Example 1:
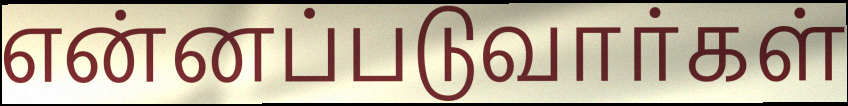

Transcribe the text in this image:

என்னப்படுவார்கள்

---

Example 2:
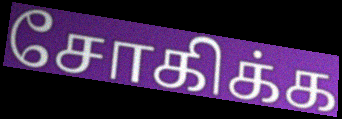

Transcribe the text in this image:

சோகிக்க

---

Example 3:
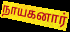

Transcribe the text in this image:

நாயகனார்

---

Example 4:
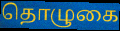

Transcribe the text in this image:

தொழுகை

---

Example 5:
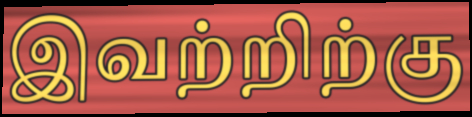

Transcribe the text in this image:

இவற்றிற்கு